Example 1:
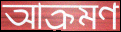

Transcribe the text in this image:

আক্রমণ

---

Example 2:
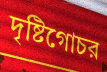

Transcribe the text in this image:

দৃষ্টিগোচর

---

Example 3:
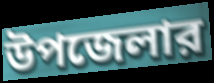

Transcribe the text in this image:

উপজেলার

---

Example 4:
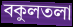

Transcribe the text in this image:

বকুলতলা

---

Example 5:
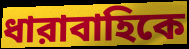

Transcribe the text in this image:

ধারাবাহিকে